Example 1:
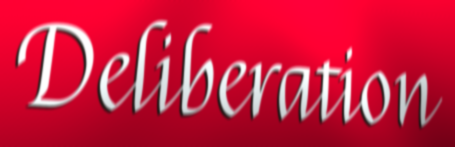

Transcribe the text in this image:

Deliberation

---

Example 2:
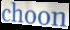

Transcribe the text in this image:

choon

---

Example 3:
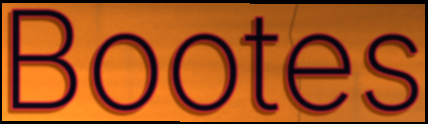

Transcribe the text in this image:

Bootes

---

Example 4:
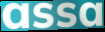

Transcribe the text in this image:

assa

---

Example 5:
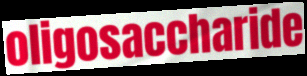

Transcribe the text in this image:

oligosaccharide